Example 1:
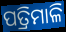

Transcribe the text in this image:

ପତ୍ରିମାଳି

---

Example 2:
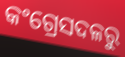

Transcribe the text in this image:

କଂଗ୍ରେସଦଳରୁ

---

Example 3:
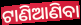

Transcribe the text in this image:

ଟାଣିଆଣିବା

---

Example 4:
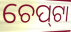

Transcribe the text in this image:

ଚେପ୍‌ଟା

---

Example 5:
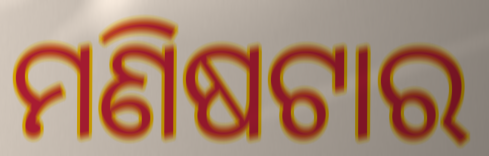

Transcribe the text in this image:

ମଣିଷଟାର